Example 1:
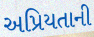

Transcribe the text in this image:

અપ્રિયતાની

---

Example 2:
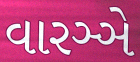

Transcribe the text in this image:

વારઞ્ઞે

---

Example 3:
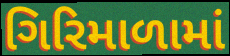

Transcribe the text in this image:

ગિરિમાળામાં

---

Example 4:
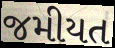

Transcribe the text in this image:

જમીયત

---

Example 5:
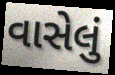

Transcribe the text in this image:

વાસેલું